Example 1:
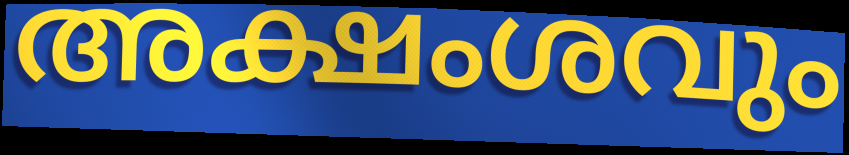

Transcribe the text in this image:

അക്ഷംശവും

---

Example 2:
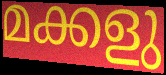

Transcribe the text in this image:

മക്കളു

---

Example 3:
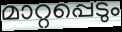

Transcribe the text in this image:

മാറ്റപ്പെടും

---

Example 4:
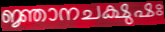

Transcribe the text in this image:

ജ്ഞാനചക്ഷുഷഃ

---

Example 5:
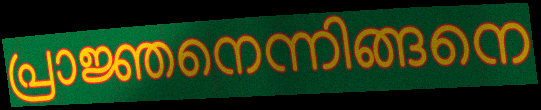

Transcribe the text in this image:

പ്രാജ്ഞനെന്നിങ്ങനെ